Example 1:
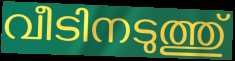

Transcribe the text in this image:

വീടിനടുത്തു്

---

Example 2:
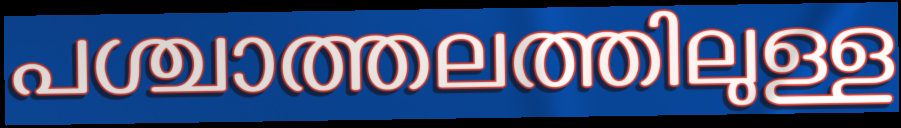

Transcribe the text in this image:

പശ്ചാത്തലത്തിലുള്ള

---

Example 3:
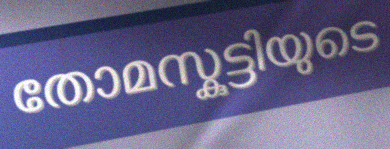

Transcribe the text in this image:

തോമസ്കുട്ടിയുടെ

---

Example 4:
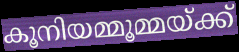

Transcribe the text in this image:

കൂനിയമ്മൂമ്മയ്ക്ക്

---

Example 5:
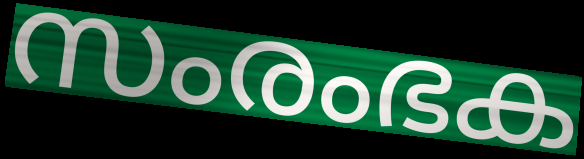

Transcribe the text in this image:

സംരംഭക